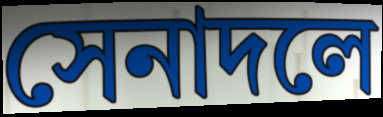
সেনাদলে